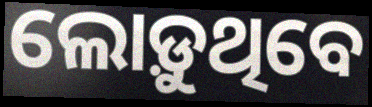
ଲୋଡ଼ୁଥିବେ